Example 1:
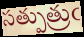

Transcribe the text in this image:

సత్పుత్రుఁ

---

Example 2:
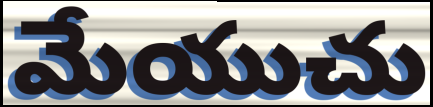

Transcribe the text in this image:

మేయుచు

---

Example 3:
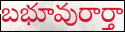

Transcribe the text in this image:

బభూవురార్తా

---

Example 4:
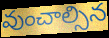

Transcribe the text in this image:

వుంచాల్సిన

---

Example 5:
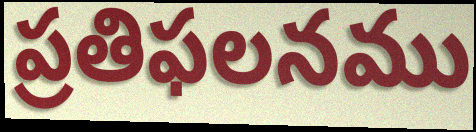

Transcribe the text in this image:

ప్రతిఫలనము